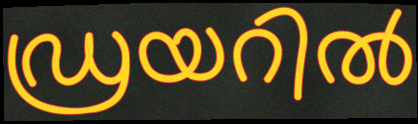
ഡ്രയറിൽ